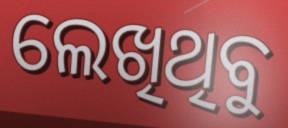
ଲେଖିଥିବୁ